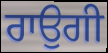
ਰਾਉਗੀ